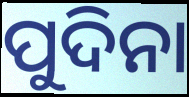
ପୁଦିନା